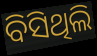
ବିସିଥିଲି